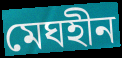
মেঘহীন